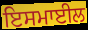
ਇਸਮਾਈਲ